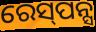
ରେସ୍‌ପନ୍ସ